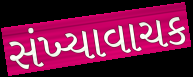
સંખ્યાવાચક